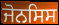
ਜੋਨਸਿਸ